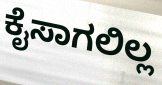
ಕೈಸಾಗಲಿಲ್ಲ